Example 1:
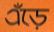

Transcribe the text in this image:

এঁড়ে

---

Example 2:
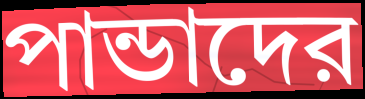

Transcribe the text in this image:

পান্ডাদের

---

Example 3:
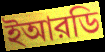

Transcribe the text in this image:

ইআরডি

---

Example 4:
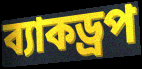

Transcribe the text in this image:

ব্যাকড্রপ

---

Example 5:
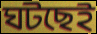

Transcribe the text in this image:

ঘটছেই